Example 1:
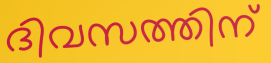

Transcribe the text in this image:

ദിവസത്തിന്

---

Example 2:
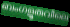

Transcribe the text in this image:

ബംഗളൂരുവിലെ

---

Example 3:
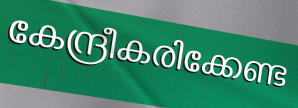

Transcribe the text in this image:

കേന്ദ്രീകരിക്കേണ്ട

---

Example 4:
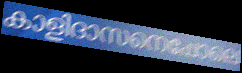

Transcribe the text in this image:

കാളിദാസനെപ്പോലെ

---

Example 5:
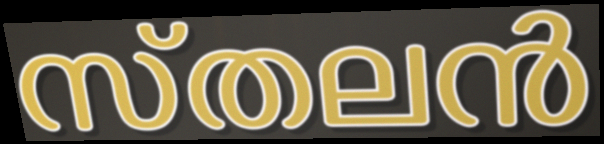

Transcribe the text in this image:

സ്‌തലൻ